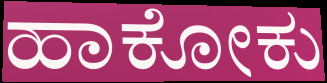
ಹಾಕೋಕು